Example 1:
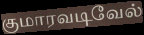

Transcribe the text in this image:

குமாரவடிவேல்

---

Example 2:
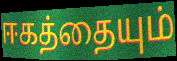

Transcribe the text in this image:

ஈகத்தையும்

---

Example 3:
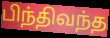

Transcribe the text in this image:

பிந்திவந்த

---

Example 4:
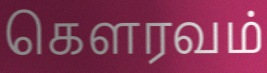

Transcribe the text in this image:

கெளரவம்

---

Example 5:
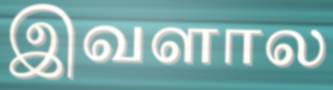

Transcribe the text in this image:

இவளால